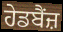
ਹੇਡਬੈਂਜ਼